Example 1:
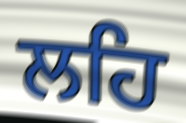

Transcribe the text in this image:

ਲਹਿ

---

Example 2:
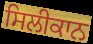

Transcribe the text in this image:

ਸਿਲੀਕਾਨ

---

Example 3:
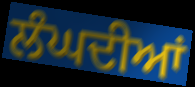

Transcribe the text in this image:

ਲੰਘਦੀਆਂ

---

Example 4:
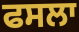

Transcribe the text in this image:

ਫਸਲਾ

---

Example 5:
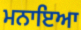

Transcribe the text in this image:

ਮਨਾਇਆ